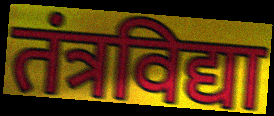
तंत्रविद्या